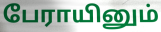
பேராயினும்